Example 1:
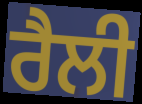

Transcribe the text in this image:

ਰੈਲੀ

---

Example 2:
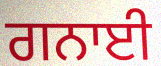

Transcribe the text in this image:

ਗਨਾਈ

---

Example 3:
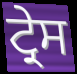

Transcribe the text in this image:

ਟ੍ਰੇਸ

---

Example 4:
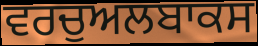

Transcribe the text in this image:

ਵਰਚੁਅਲਬਾਕਸ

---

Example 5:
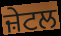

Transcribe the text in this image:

ਜ਼ੇਟਲ